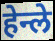
हेन्ले